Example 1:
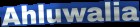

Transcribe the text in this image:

Ahluwalia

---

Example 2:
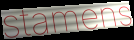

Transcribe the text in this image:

stamens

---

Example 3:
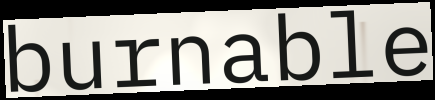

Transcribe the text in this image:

burnable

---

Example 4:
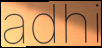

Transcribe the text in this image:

adhi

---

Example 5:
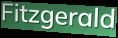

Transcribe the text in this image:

Fitzgerald